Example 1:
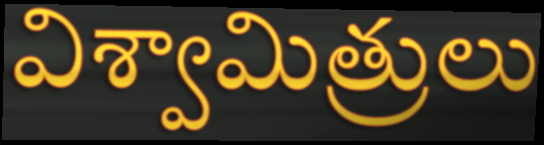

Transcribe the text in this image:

విశ్వామిత్రులు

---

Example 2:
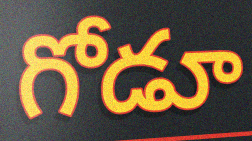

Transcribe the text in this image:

గోడూ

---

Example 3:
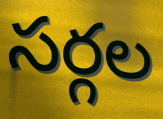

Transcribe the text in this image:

సర్గల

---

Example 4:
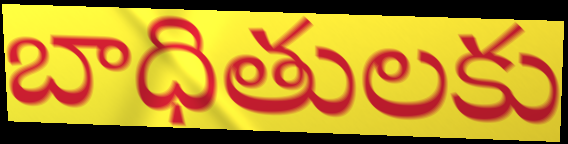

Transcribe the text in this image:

బాధితులకు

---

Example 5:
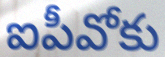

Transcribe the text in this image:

ఐపీవోకు